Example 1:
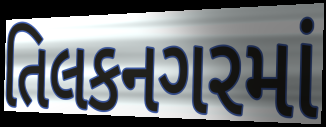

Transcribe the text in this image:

તિલકનગરમાં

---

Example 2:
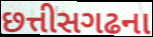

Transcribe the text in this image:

છત્તીસગઢના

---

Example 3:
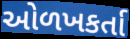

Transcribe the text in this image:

ઓળખકર્તા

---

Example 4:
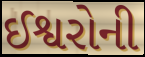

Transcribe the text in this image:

ઈશ્વરોની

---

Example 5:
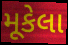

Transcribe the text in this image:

મૂકેલા